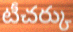
టీచర్కు